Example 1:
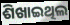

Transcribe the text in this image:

ଶିଖାଇଥିଲ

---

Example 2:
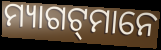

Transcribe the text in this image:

ମ୍ୟାଗଟ୍‌ମାନେ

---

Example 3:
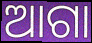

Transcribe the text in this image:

ଆଗା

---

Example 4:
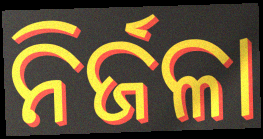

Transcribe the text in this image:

ନିର୍ଜଳା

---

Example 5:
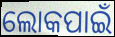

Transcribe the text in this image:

ଲୋକପାଇଁ